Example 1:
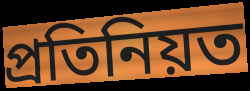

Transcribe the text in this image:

প্রতিনিয়ত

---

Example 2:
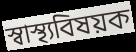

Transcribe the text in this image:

স্বাস্থ্যবিষয়ক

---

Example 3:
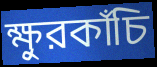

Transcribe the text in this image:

ক্ষুরকাঁচি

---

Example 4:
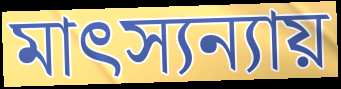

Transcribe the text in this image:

মাৎস্যন্যায়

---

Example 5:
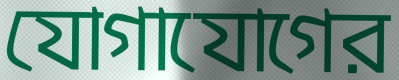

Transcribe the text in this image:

যোগাযোগের